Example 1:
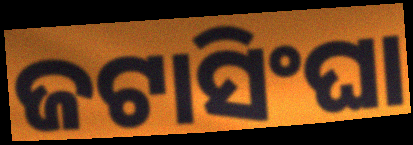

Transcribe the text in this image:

ଜଟାସିଂଘା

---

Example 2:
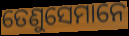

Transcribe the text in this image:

ତେଣୁସେମାନେ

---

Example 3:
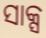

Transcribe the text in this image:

ସାକ୍ସ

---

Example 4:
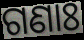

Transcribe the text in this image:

ଗଣାଃ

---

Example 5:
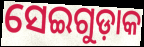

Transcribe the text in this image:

ସେଇଗୁଡ଼ାକ